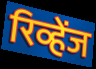
रिव्हेंज